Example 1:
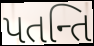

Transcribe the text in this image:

પતન્તિ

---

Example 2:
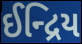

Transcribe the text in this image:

ઈન્દ્રિય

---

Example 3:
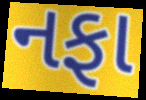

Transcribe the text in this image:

નફા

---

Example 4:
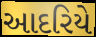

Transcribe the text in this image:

આદરિયે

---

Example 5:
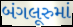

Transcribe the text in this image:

બંગલૂરુમાં